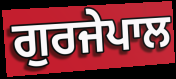
ਗੁਰਜੇਪਾਲ